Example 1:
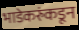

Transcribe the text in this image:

भाडेकरुंकडून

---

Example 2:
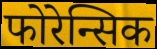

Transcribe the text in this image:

फोरेन्सिक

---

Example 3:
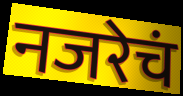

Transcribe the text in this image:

नजरेचं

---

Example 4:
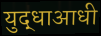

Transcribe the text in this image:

युद्धाआधी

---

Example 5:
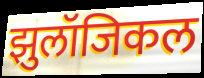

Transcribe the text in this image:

झुलॉजिकल